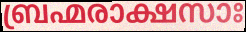
ബ്രഹ്മരാക്ഷസാഃ